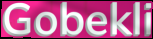
Gobekli